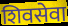
शिवसेवा